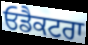
ਓਡੈਕਟਰਾ